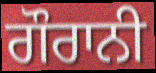
ਗੌਰਾਨੀ